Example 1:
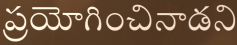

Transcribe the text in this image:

ప్రయోగించినాడని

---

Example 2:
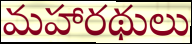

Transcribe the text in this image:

మహారథులు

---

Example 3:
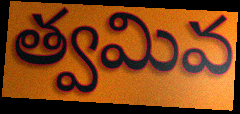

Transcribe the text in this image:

త్వమివ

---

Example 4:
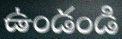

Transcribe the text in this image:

ఉండండి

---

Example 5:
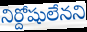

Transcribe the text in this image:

నిర్దోషులేనని